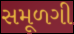
સમૂળગી